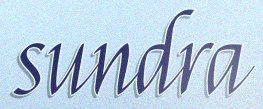
sundra